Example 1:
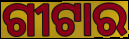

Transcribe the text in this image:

ଗୀଟାର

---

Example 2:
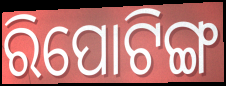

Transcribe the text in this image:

ରିପୋଟିଙ୍ଗ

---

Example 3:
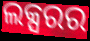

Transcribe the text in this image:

ଲକ୍ସରର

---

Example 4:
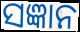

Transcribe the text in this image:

ସଜ୍ଞାନ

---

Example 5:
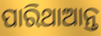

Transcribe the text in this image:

ପାରିଥାଆନ୍ତ